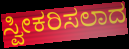
ಸ್ವೀಕರಿಸಲಾದ